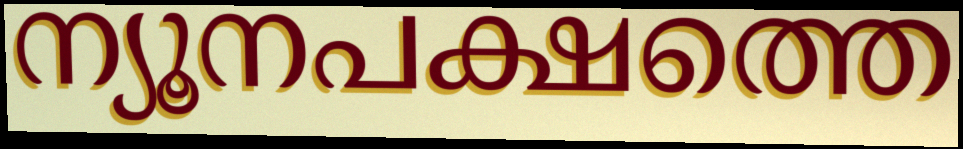
ന്യൂനപക്ഷത്തെ